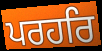
ਪਰਹਰਿ